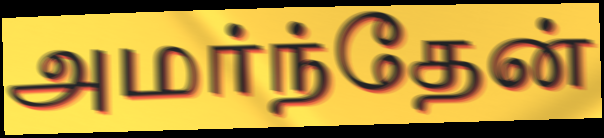
அமர்ந்தேன்